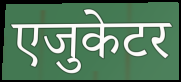
एजुकेटर